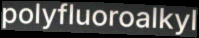
polyfluoroalkyl